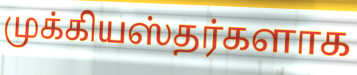
முக்கியஸ்தர்களாக